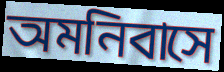
অমনিবাসে